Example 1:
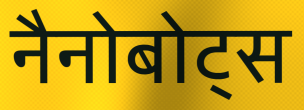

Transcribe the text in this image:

नैनोबोट्स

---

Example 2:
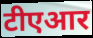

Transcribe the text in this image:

टीएआर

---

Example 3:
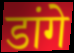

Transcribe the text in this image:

डांगे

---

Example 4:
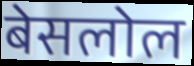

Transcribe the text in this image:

बेसलोल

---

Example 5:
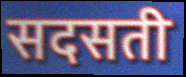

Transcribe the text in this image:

सदसती